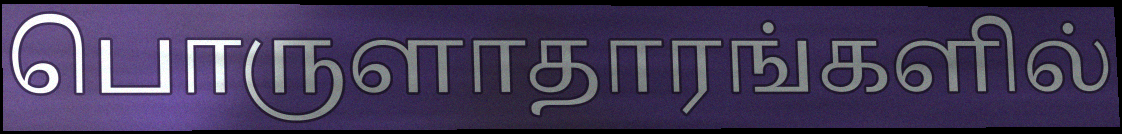
பொருளாதாரங்களில்